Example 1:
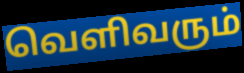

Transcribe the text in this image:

வெளிவரும்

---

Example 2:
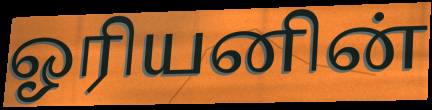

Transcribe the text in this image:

ஓரியனின்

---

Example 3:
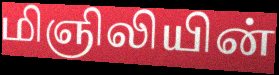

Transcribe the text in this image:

மிஞிலியின்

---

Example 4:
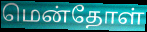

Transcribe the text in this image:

மென்தோள்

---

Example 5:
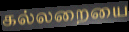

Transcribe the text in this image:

கல்லறையை